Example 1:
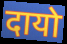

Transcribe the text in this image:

दायो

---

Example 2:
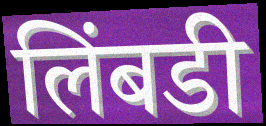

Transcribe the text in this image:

लिंबडी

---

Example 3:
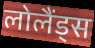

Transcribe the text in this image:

लोलैंड्स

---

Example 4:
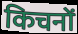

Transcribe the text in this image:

किचनों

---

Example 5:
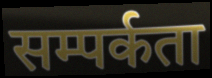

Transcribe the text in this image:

सम्पर्कता